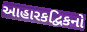
આહારકદ્વિકનો